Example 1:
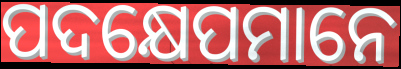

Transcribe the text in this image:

ପଦକ୍ଷେପମାନେ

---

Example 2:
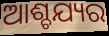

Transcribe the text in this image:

ଆଶ୍ଚଯ୍ୟର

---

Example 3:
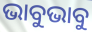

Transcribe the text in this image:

ଭାବୁଭାବୁ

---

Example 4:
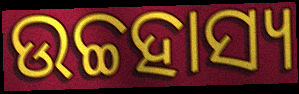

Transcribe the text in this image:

ଉଚ୍ଚହାସ୍ୟ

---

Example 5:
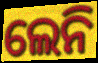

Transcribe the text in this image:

ଲେନି